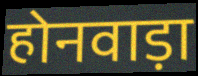
होनवाड़ा